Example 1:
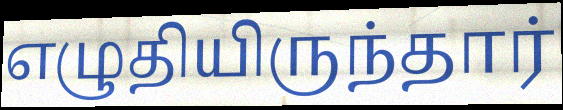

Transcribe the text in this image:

எழுதியிருந்தார்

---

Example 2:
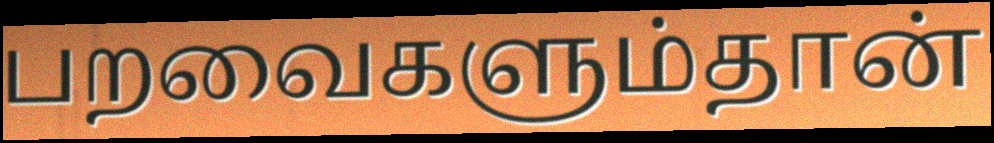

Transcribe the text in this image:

பறவைகளும்தான்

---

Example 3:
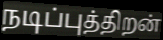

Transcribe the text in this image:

நடிப்புத்திறன்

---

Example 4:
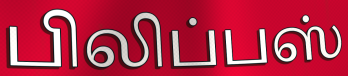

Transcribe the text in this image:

பிலிப்பஸ்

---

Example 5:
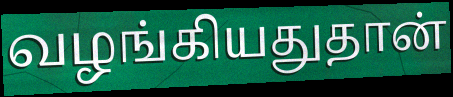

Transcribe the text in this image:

வழங்கியதுதான்